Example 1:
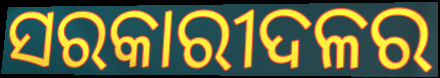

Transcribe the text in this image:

ସରକାରୀଦଳର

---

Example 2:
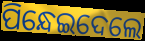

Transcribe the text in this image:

ପିନ୍ଧେଇଦେଲେ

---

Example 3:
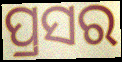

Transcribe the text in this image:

ପ୍ରସର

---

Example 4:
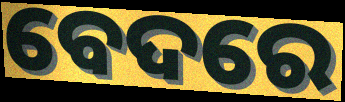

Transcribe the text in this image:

ବେଦରେ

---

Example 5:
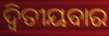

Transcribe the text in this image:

ଦ୍ୱିତୀୟବାର